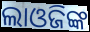
ଲାଓଜିଙ୍କ